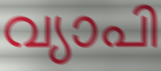
വ്യാപി